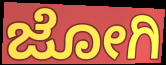
ಜೋಗಿ